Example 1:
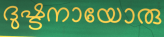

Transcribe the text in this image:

ദുഷ്ടനായോരു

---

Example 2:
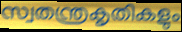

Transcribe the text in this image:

സ്വതന്ത്രകൃതികളും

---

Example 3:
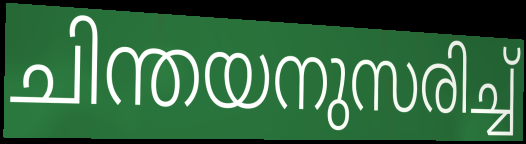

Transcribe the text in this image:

ചിന്തയനുസരിച്ച്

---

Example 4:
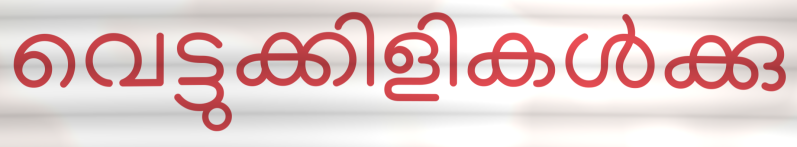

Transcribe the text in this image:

വെട്ടുക്കിളികൾക്കു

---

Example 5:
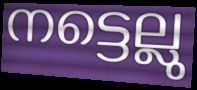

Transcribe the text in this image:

നട്ടെല്ലു